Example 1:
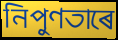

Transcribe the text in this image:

নিপুণতাৰে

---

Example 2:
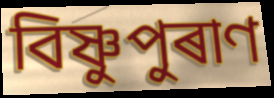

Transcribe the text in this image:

বিষ্ণুপুৰাণ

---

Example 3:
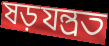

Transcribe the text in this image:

ষড়যন্ত্ৰত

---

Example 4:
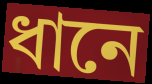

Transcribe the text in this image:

ধানে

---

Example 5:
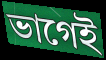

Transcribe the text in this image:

ভাগেই